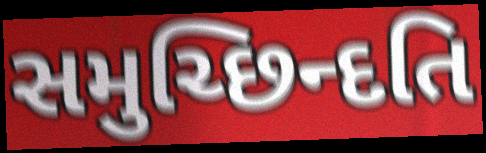
સમુચ્છિન્દતિ